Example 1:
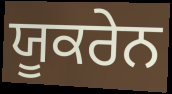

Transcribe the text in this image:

ਯੂਕਰੇਨ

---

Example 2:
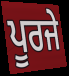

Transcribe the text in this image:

ਪੂਰਜੇ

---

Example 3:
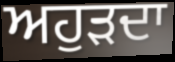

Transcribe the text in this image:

ਅਹੁੜਦਾ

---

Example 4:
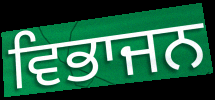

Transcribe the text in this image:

ਵਿਭਾਜਨ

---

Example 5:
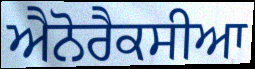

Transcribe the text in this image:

ਐਨੋਰੈਕਸੀਆ